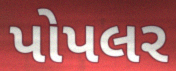
પોપલર